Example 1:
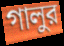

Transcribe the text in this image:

গালুর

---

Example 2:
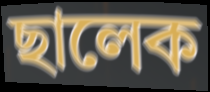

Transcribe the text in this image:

ছালেক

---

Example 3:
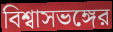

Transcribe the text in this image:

বিশ্বাসভঙ্গের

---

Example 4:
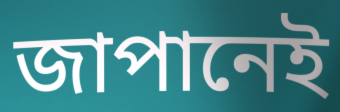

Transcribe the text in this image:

জাপানেই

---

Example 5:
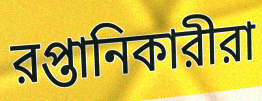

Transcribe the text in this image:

রপ্তানিকারীরা